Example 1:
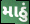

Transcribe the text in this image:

માઠું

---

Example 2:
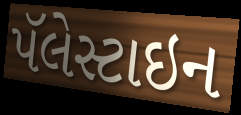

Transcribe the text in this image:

પૅલેસ્ટાઇન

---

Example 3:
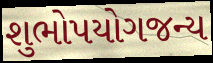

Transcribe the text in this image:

શુભોપયોગજન્ય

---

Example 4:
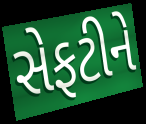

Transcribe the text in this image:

સેફટીને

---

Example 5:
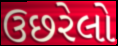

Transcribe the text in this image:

ઉછરેલો